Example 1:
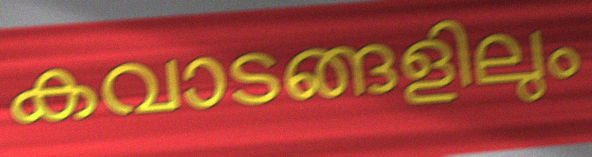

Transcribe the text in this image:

കവാടങ്ങളിലും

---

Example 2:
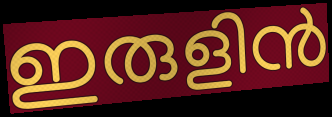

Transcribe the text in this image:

ഇരുളിൻ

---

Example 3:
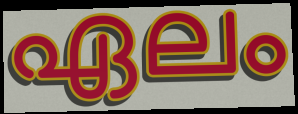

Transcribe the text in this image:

ഏലം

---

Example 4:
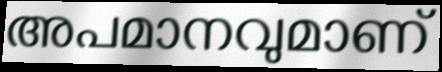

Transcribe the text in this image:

അപമാനവുമാണ്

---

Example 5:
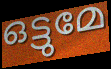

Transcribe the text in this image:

ഒട്ടുമേ